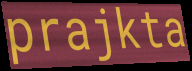
prajkta